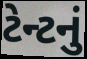
ટેન્ટનું